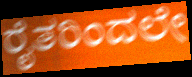
ರೈತರಿಂದಲೇ